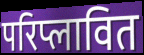
परिप्लावित